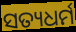
ସତ୍ୟଧର୍ମ